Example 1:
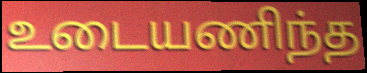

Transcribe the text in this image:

உடையணிந்த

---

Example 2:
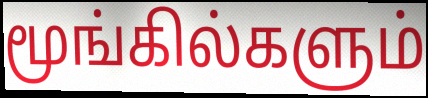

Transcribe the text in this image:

மூங்கில்களும்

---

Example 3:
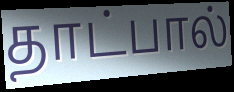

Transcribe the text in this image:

தாட்பால்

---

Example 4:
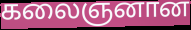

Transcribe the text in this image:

கலைஞனான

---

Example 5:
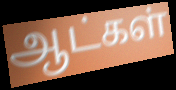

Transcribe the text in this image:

ஆட்கள்